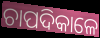
ଚାପଦିକାଳେ